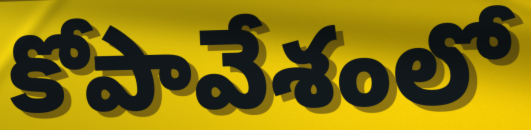
కోపావేశంలో